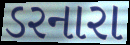
ડરનારા